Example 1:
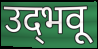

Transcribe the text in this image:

उद्‌भवू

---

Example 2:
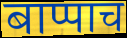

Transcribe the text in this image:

बाप्पाच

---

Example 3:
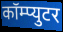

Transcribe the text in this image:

कॉम्प्युटर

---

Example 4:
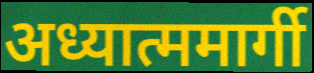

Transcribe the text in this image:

अध्यात्ममार्गी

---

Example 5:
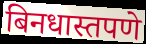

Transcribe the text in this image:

बिनधास्तपणे